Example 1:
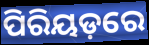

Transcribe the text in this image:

ପିରିୟଡ଼ରେ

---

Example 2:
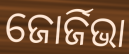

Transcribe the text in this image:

ଜୋର୍ଜିଭା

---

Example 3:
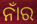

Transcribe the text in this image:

ନାଁର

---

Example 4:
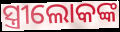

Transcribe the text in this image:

ସ୍ତ୍ରୀଲୋକଙ୍କ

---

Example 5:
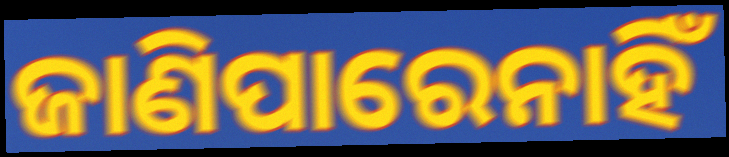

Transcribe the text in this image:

ଜାଣିପାରେନାହିଁ